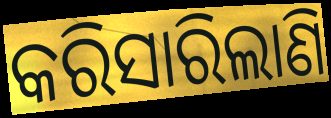
କରିସାରିଲାଣି